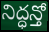
నిద్ధన్తో